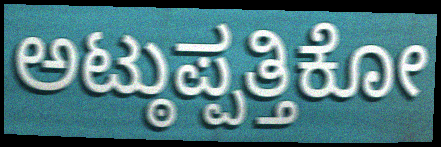
ಅಟ್ಠುಪ್ಪತ್ತಿಕೋ